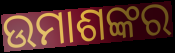
ଉମାଶଙ୍କର